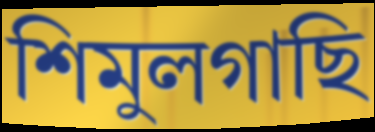
শিমুলগাছি